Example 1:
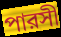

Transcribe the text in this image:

পারসী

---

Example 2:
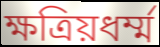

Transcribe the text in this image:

ক্ষত্রিয়ধর্ম্ম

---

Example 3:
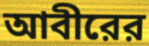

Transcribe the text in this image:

আবীরের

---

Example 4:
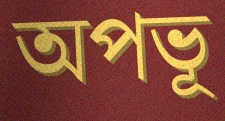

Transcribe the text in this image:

অপভূ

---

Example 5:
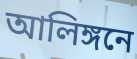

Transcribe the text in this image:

আলিঙ্গনে